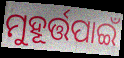
ମୁହୂର୍ତ୍ତପାଇଁ